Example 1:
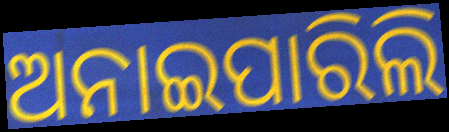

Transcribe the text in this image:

ଅନାଇପାରିଲି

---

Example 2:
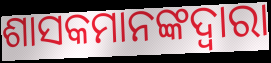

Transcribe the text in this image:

ଶାସକମାନଙ୍କଦ୍ୱାରା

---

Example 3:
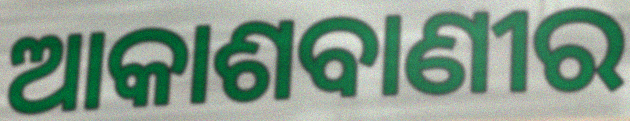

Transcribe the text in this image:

ଆକାଶବାଣୀର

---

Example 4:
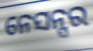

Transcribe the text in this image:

ନେସନ୍ସର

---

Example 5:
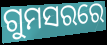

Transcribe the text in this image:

ଗୁମସରରେ